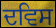
ਦਵਿਸ